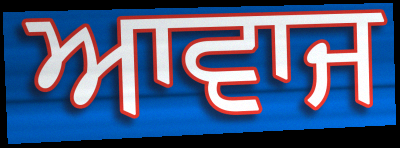
ਆਵਾਜ